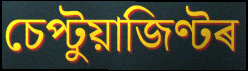
চেপ্টুয়াজিণ্টৰ